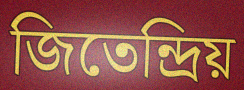
জিতেন্দ্রিয়